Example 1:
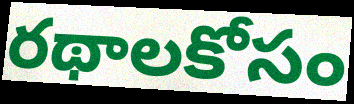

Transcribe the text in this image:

రథాలకోసం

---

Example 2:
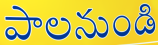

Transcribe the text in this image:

పాలనుండి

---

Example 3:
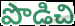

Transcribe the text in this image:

పొడిచి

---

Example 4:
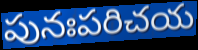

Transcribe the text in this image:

పునఃపరిచయ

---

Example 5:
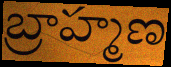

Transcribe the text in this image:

బ్రాహ్మణ